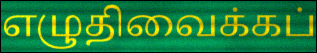
எழுதிவைக்கப்